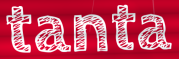
tanta